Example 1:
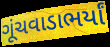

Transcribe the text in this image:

ગૂંચવાડાભર્યાં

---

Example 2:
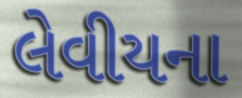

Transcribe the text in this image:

લેવીયના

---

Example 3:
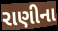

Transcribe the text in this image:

રાણીના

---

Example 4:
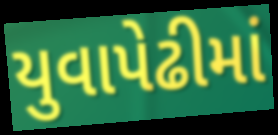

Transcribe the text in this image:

યુવાપેઢીમાં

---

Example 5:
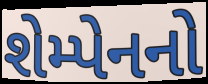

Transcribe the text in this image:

શેમ્પેનનો